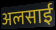
अलसाई